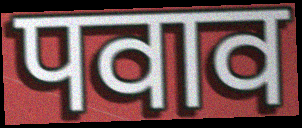
पवाव